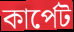
কাৰ্পেট